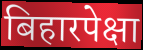
बिहारपेक्षा